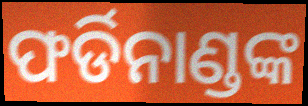
ଫର୍ଡିନାଣ୍ଡଙ୍କ